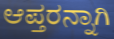
ಆಪ್ತರನ್ನಾಗಿ